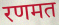
रणमत